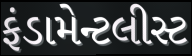
ફંડામેન્ટલીસ્ટ